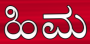
ಹಿಮ